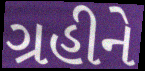
ગ્રહીને